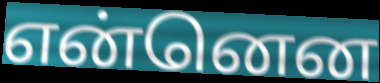
என்னென